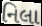
નિલા